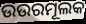
ଉଉରମୂଲକ